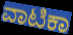
ವಾಟಿಕಾ